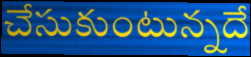
చేసుకుంటున్నదే